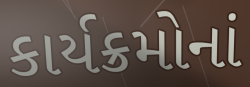
કાર્યક્રમોનાં